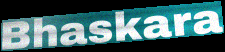
Bhaskara